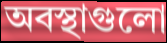
অবস্থাগুলো